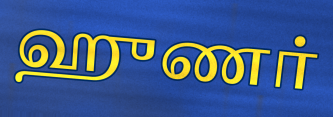
ஹுணர்